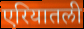
एरियातली